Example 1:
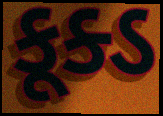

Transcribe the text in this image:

કૂક્ડ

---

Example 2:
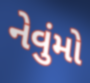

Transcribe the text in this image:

નેવુંમો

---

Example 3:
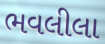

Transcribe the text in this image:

ભવલીલા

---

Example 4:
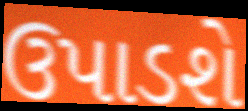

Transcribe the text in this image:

ઉપાડશે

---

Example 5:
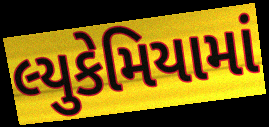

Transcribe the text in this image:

લ્યુકેમિયામાં